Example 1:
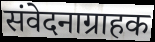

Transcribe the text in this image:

संवेदनाग्राहक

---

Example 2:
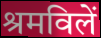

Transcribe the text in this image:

श्रमविलें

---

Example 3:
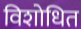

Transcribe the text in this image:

विशोधित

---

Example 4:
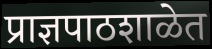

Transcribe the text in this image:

प्राज्ञपाठशाळेत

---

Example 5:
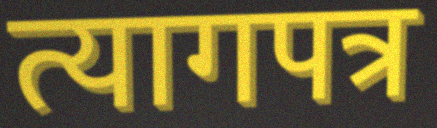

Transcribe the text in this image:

त्यागपत्र